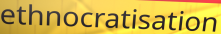
ethnocratisation